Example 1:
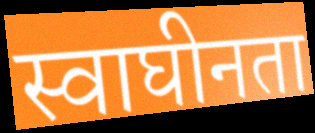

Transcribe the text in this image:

स्वाघीनता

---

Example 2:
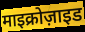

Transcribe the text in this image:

माइक्रोज़ाइड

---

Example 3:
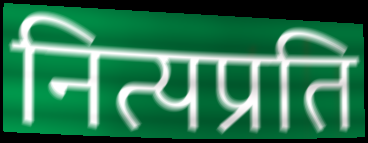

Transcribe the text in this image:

नित्यप्रति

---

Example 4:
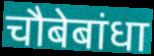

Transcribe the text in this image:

चौबेबांधा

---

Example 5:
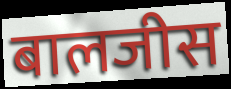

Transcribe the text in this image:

बालजीस